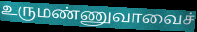
உருமண்ணுவாவைச்